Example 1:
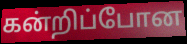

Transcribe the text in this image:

கன்றிப்போன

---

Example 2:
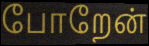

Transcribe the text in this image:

போறேன்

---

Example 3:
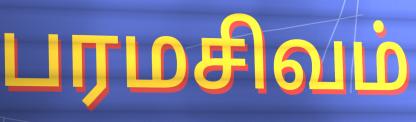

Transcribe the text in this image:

பரமசிவம்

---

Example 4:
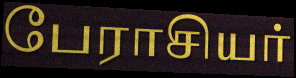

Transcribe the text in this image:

பேராசியர்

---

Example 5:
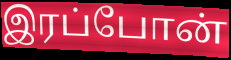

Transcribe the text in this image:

இரப்போன்